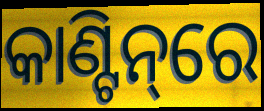
କାଣ୍ଟିନ୍‌ରେ